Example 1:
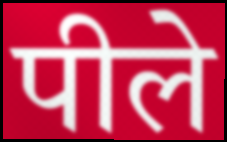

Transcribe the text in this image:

पीले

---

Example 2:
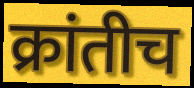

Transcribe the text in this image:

क्रांतीच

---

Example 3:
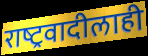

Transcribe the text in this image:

राष्ट्रवादीलाही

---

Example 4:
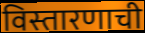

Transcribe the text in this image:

विस्तारणाची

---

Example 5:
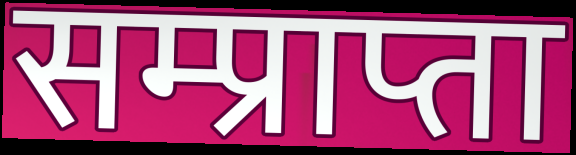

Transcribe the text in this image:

सम्प्राप्ता